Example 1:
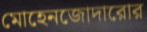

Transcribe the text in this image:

মোহেনজোদারোর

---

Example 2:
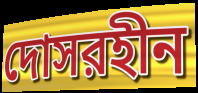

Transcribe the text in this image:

দোসরহীন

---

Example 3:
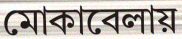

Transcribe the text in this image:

মোকাবেলায়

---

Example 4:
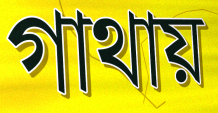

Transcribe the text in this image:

গাথায়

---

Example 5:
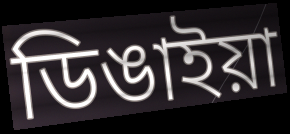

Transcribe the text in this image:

ডিঙাইয়া